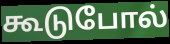
கூடுபோல்